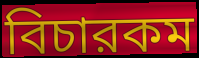
বিচারকম